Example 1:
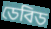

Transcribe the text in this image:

ডেবিড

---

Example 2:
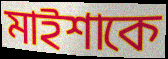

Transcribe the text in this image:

মাইশাকে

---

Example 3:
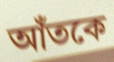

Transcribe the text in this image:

আঁতকে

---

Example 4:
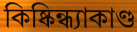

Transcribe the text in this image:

কিষ্কিন্ধ্যাকাণ্ড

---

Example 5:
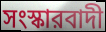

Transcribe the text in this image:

সংস্কারবাদী